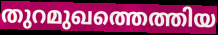
തുറമുഖത്തെത്തിയ